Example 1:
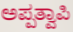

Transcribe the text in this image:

ಅಪ್ಪತ್ವಾಪಿ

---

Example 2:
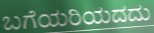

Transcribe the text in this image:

ಬಗೆಯರಿಯದದು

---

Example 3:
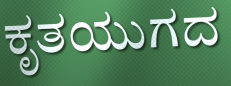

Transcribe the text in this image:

ಕೃತಯುಗದ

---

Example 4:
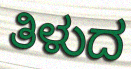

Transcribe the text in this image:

ತಿಳುದ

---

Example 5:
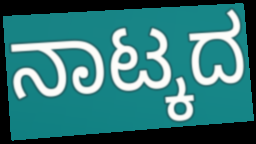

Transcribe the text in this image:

ನಾಟ್ಕದ